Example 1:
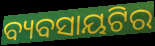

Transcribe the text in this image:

ବ୍ୟବସାୟଟିର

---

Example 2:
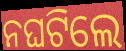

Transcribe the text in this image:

ନଘଟିଲେ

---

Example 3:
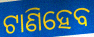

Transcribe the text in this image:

ଟାଣିହେବ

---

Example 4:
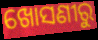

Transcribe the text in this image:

ଖୋସଣୀରୁ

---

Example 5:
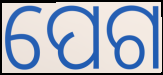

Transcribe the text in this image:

ପେଗ